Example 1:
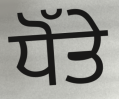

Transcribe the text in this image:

ਧੋੱਤੇ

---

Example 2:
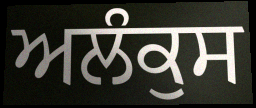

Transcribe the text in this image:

ਅਲੰਕੁਸ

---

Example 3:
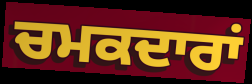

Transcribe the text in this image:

ਚਮਕਦਾਰਾਂ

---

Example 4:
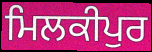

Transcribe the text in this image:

ਮਿਲਕੀਪੁਰ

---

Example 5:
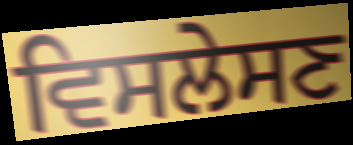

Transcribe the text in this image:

ਵਿਸਲੇਸਣ